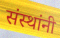
संस्थांनी